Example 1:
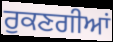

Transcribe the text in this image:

ਰੁਕਣਗੀਆਂ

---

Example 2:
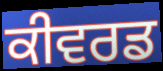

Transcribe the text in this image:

ਕੀਵਰਡ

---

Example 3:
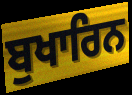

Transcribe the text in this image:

ਬੁਖਾਰਿਨ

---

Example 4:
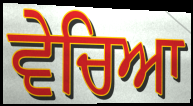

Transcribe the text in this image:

ਵੇਚਿਆ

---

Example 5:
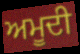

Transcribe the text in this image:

ਅਮੂਦੀ